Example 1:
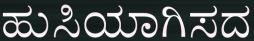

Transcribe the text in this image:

ಹುಸಿಯಾಗಿಸದ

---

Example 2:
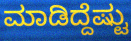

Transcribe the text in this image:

ಮಾಡಿದ್ದೆಷ್ಟು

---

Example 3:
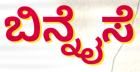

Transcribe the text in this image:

ಬಿನ್ನೈಸೆ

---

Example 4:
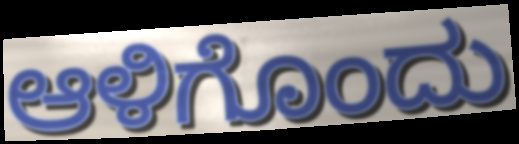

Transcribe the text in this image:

ಆಳಿಗೊಂದು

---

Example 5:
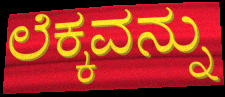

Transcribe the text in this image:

ಲೆಕ್ಕವನ್ನು